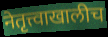
नेतृत्त्वाखालीच